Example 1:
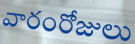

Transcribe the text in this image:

వారంరోజులు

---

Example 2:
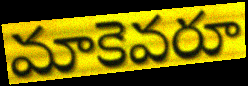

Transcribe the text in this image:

మాకెవరూ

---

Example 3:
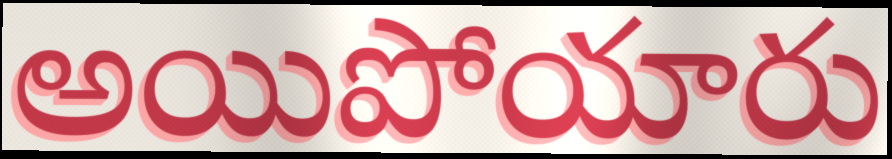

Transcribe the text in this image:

అయిపోయారు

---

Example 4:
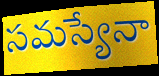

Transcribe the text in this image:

సమస్యేనా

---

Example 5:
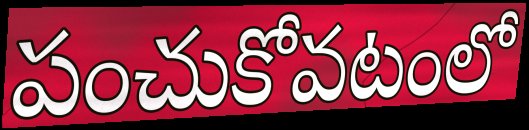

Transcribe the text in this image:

పంచుకోవటంలో